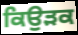
ਕਿਉੜਕ